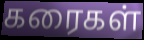
கரைகள்